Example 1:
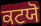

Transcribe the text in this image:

ਕਟਯੋ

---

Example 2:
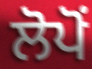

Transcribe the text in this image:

ਲੋਪੋਂ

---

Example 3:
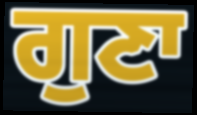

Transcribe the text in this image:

ਗੁਣਾ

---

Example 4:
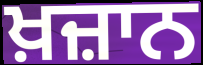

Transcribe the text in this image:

ਖ਼ਜ਼ਾਨ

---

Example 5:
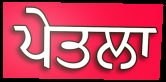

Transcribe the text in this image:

ਪੇਤਲਾ